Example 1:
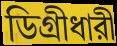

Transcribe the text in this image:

ডিগ্রীধারী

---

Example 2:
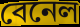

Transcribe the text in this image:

বেনেল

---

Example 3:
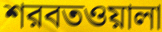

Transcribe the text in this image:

শরবতওয়ালা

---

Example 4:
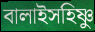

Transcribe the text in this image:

বালাইসহিষ্ণু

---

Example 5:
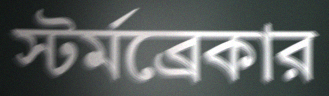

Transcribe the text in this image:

স্টর্মব্রেকার